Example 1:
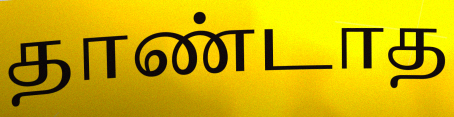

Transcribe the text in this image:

தாண்டாத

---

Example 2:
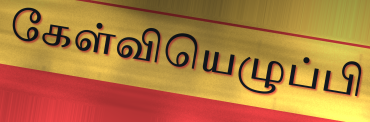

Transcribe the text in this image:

கேள்வியெழுப்பி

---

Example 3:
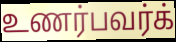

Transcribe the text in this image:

உணர்பவர்க்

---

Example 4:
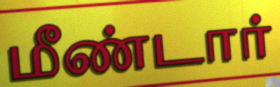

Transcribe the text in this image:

மீண்டார்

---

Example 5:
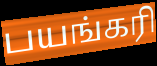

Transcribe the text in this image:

பயங்கரி